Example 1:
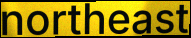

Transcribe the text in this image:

northeast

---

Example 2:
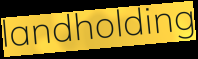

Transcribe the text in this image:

landholding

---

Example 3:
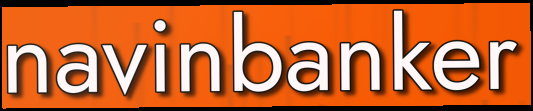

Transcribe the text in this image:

navinbanker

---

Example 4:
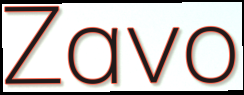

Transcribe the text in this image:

Zavo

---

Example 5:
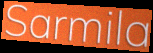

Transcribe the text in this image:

Sarmila